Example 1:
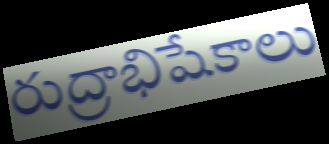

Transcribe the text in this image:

రుద్రాభిషేకాలు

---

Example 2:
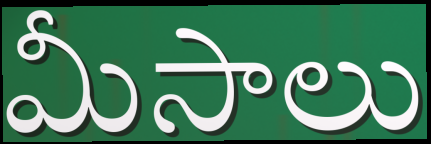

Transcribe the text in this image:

మీసాలు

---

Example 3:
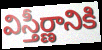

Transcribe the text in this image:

విస్తీర్ణానికి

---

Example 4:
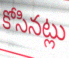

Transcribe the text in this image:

కోసినట్లు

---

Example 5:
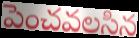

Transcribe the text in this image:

పెంచవలసిన